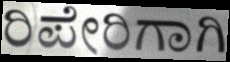
ರಿಪೇರಿಗಾಗಿ